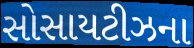
સોસાયટીઝના